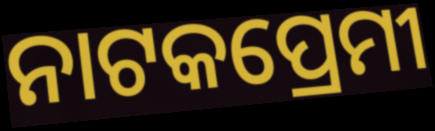
ନାଟକପ୍ରେମୀ